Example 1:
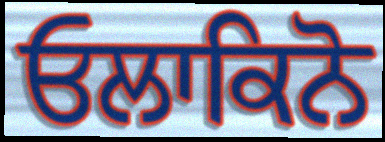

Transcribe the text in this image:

ਓਲਾਕਿਨੋ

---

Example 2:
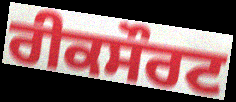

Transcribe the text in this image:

ਰੀਕਸੌਰਟ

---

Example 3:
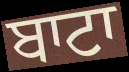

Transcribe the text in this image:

ਬਾਟਾ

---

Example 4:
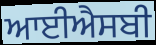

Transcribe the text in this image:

ਆਈਐਸਬੀ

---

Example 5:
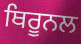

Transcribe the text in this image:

ਥਿਰੂਨਲ